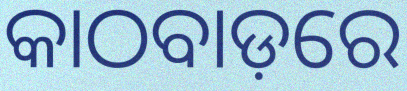
କାଠବାଡ଼ରେ